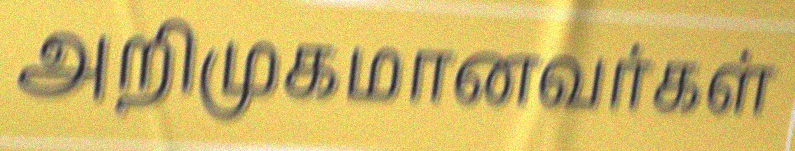
அறிமுகமானவர்கள்